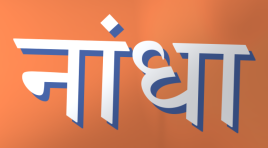
नांधा